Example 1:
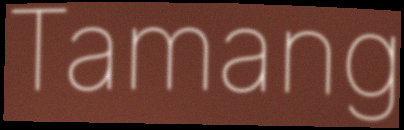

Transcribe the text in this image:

Tamang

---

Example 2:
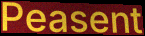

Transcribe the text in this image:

Peasent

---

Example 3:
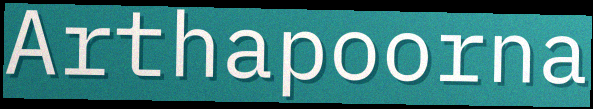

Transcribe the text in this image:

Arthapoorna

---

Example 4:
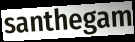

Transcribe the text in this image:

santhegam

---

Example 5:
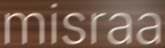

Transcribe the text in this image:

misraa